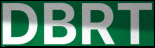
DBRT